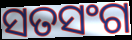
ସତସଂଗ